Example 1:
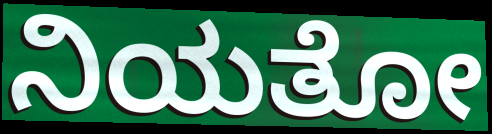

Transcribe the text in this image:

ನಿಯತೋ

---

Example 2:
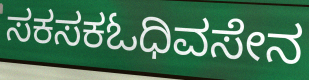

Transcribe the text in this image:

ಸಕಸಕಓಧಿವಸೇನ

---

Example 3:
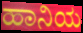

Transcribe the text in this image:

ಹಾನಿಯ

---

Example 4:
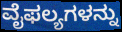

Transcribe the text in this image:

ವೈಫಲ್ಯಗಳನ್ನು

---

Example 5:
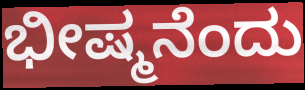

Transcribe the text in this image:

ಭೀಷ್ಮನೆಂದು